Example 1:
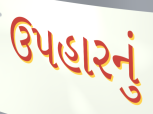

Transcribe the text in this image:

ઉપહારનું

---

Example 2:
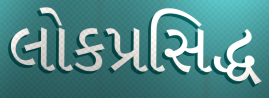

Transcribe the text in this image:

લોકપ્રસિદ્ધ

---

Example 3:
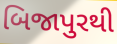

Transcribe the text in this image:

બિજાપુરથી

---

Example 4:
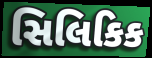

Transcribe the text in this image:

સિલિકિક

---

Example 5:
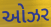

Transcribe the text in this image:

ઓઝર